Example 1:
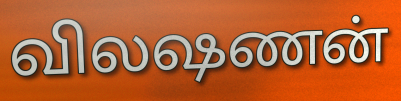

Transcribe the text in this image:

விலஷணன்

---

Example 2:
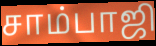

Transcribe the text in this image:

சாம்பாஜி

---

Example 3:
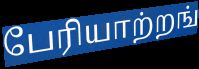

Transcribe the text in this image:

பேரியாற்றங்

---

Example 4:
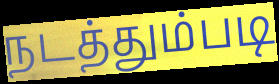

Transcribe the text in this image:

நடத்தும்படி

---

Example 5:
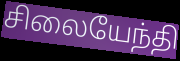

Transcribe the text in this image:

சிலையேந்தி